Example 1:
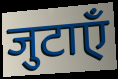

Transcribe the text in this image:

जुटाएँ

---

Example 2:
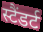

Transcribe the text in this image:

स्टैंडर्ट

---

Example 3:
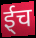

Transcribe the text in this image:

ई्च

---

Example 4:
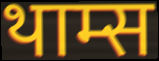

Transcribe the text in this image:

थाम्स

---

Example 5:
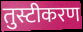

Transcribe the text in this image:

तुस्टीकरण